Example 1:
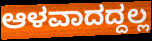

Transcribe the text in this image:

ಆಳವಾದದ್ದಲ್ಲ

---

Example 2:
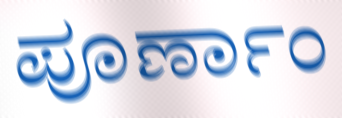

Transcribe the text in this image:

ಪೂರ್ಣಾಂ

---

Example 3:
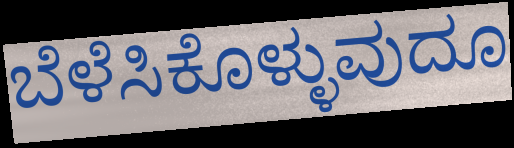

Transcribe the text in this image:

ಬೆಳೆಸಿಕೊಳ್ಳುವುದೂ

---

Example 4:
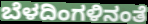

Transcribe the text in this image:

ಬೆಳದಿಂಗಳಿನಂತೆ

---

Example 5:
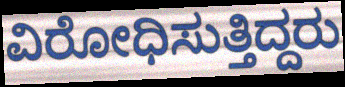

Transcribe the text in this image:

ವಿರೋಧಿಸುತ್ತಿದ್ದರು